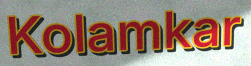
Kolamkar